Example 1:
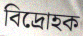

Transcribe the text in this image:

বিদ্ৰোহক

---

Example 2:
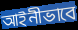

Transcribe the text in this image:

আইনীভাবে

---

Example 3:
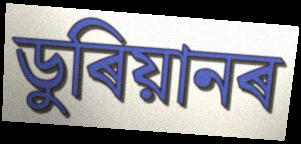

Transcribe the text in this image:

ডুৰিয়ানৰ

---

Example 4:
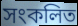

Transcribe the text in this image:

সংকলিত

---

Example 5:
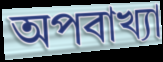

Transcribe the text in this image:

অপবাখ্যা